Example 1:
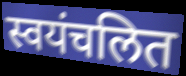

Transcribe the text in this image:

स्वयंचलित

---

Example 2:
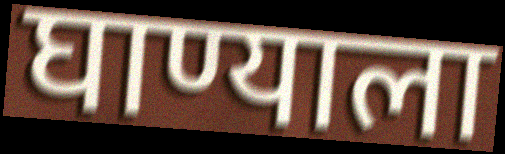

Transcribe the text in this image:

घाण्याला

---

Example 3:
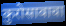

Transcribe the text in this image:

कुरोसावाचा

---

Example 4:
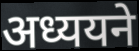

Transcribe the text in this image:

अध्ययने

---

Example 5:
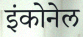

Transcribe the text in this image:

इंकोनेल